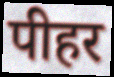
पीहर